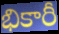
భికారీ